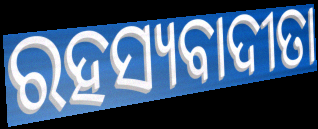
ରହସ୍ୟବାଦୀତା